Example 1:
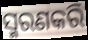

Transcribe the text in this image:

ସ୍ମରଣକରି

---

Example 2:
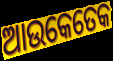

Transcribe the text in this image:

ଆଉକେତେକ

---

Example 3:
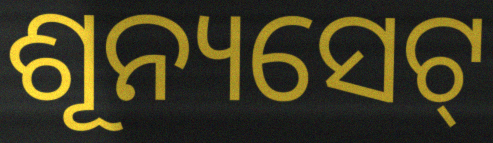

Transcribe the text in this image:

ଶୂନ୍ୟସେଟ୍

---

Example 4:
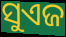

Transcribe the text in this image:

ସୁଏଜ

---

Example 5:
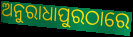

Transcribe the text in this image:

ଅନୁରାଧାପୁରଠାରେ